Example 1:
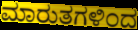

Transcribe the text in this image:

ಮಾರುತಗಳಿಂದ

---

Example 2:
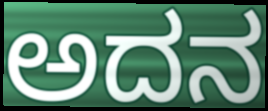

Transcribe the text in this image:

ಅದನ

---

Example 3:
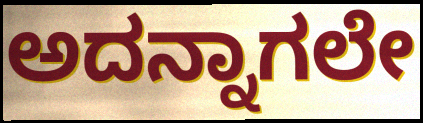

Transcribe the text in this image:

ಅದನ್ನಾಗಲೇ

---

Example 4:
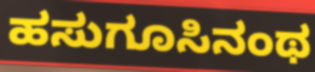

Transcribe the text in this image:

ಹಸುಗೂಸಿನಂಥ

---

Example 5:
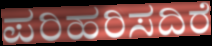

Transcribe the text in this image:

ಪರಿಹರಿಸದಿರೆ